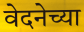
वेदनेच्या